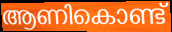
ആണികൊണ്ട്